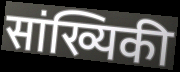
सांख्यिकी